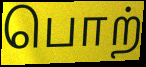
பொற்